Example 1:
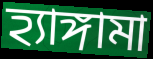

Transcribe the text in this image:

হ্যাঙ্গামা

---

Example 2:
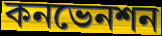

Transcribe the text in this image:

কনভেনশন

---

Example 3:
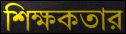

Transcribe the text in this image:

শিক্ষকতার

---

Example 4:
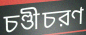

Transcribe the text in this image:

চণ্ডীচরণ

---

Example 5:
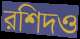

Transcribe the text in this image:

রশিদও